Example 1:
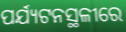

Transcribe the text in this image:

ପର୍ଯ୍ୟଟନସ୍ଥଳୀରେ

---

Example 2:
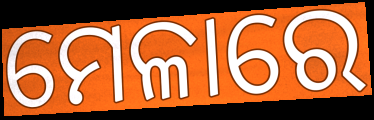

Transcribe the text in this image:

ମେଳାରେ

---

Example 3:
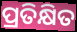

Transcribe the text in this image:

ପ୍ରତିକ୍ଷିତ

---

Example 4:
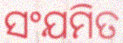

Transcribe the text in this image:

ସଂଯମିତ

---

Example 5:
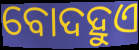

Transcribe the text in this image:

ବୋଦହୁଏ